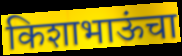
किशाभाऊंचा